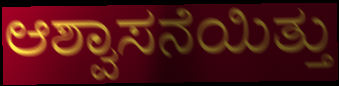
ಆಶ್ವಾಸನೆಯಿತ್ತು